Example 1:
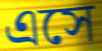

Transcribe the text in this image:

এসে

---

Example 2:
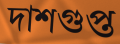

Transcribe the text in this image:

দাশগুপ্ত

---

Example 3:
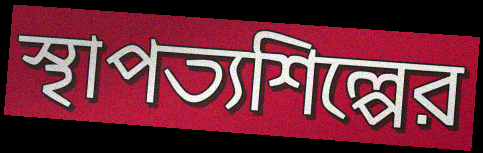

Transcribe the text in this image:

স্থাপত্যশিল্পের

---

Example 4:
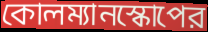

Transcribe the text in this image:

কোলম্যানস্কোপের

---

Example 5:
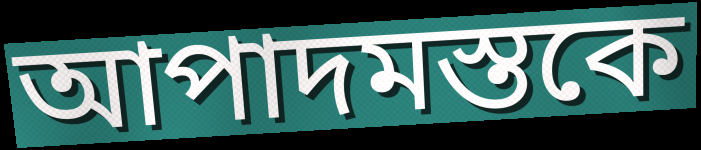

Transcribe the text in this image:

আপাদমস্তকে